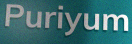
Puriyum